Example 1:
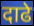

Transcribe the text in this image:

दाढे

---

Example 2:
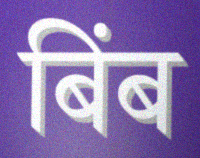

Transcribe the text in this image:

बिंब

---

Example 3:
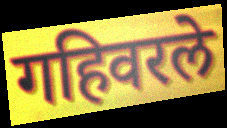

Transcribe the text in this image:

गहिवरले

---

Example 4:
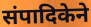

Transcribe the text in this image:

संपादिकेने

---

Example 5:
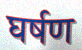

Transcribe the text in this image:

घर्षण